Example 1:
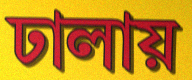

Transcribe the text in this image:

ঢালায়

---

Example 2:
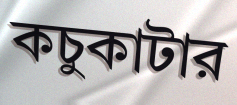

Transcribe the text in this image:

কচুকাটার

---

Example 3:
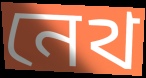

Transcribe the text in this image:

নেথ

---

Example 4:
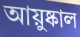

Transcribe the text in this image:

আয়ুষ্কাল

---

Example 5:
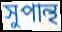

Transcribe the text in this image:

সুপান্থ